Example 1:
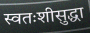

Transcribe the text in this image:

स्वतःशीसुद्धा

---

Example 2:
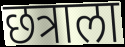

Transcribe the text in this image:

छत्राला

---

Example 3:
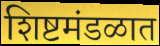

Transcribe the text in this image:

शिष्टमंडळात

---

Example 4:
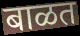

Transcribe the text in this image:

बाळत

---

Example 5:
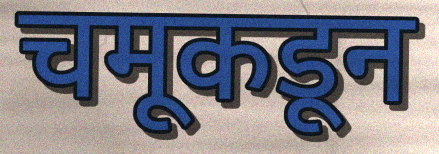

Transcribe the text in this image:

चमूकडून